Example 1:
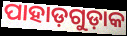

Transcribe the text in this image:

ପାହାଡ଼ଗୁଡ଼ାକ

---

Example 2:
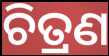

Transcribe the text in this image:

ଚିତ୍ରଣ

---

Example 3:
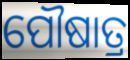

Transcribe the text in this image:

ପୌଷାତ୍ର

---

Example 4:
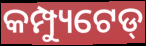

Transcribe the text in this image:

କମ୍ପ୍ୟୁଟେଡ୍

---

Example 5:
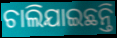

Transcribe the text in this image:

ଚାଲିଯାଇଛନ୍ତି